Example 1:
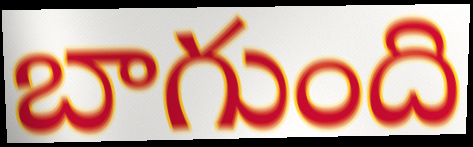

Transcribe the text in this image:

బాగుంది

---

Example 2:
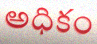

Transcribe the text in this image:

అధికం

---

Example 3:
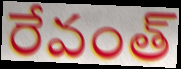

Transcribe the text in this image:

రేవంత్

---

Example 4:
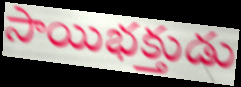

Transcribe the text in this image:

సాయిభక్తుడు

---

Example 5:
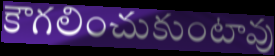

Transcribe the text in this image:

కౌగలించుకుంటావు